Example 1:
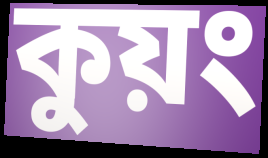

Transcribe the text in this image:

কুয়ং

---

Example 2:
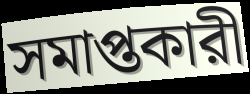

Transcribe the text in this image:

সমাপ্তকারী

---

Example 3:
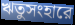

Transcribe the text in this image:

ঋতুসংহারে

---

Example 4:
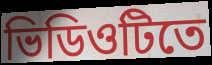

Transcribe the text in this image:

ভিডিওটিতে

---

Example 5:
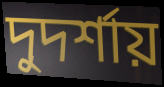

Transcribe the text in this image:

দুদর্শায়